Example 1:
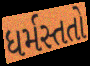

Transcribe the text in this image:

ધર્મસ્તતો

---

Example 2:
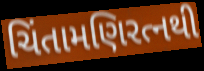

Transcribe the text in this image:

ચિંતામણિરત્નથી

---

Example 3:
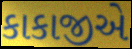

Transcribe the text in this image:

કાકાજીએ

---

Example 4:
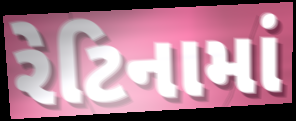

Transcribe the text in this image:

રેટિનામાં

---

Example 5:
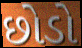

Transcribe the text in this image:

છોડો